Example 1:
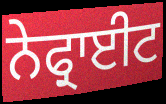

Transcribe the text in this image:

ਨੇਫ੍ਰਾਈਟ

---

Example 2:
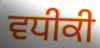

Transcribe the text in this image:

ਵਧੀਕੀ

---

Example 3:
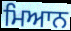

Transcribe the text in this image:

ਮਿਆਨ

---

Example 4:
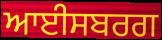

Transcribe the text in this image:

ਆਈਸਬਰਗ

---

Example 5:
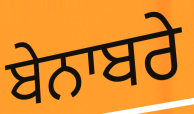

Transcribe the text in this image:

ਬੇਨਾਬਰੇ